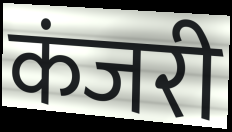
कंजरी